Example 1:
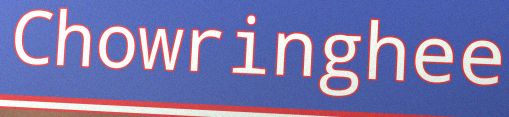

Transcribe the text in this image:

Chowringhee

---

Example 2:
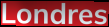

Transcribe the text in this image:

Londres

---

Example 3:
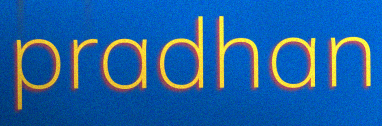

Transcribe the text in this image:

pradhan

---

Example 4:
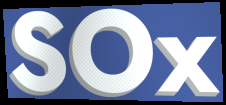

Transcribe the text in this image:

SOx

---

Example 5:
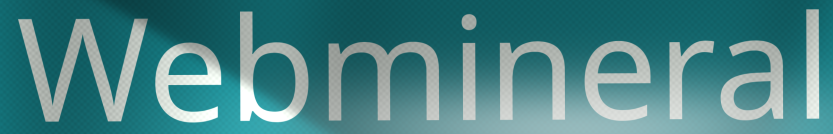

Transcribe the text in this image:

Webmineral